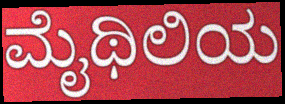
ಮೈಥಿಲಿಯ